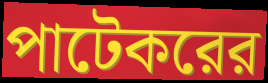
পাটেকরের